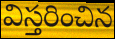
విస్తరించిన